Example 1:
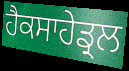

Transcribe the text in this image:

ਹੈਕਸਾਹੇਡ੍ਰਲ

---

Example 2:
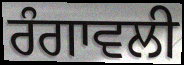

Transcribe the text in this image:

ਰੰਗਾਵਲੀ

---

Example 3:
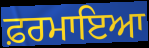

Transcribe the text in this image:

ਫ਼ਰਮਾਇਆ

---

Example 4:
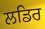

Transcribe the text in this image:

ਲਡਿਰ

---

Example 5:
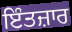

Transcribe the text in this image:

ਇੰਤਜ਼ਾਰ